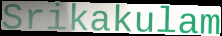
Srikakulam